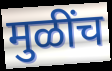
मुळींच